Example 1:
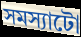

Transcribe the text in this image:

সমস্যাটো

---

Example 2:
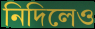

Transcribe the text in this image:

নিদিলেও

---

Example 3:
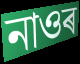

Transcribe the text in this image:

নাওৰ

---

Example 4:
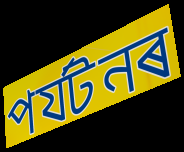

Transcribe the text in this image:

পৰ্যটনৰ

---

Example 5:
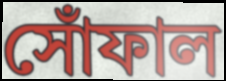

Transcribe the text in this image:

সোঁফাল